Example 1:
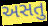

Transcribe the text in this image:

અસતુ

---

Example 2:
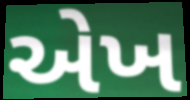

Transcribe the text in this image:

એખ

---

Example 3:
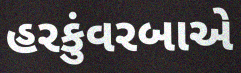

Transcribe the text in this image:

હરકુંવરબાએ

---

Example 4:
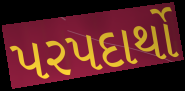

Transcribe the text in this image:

પરપદાર્થો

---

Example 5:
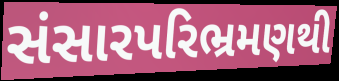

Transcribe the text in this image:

સંસારપરિભ્રમણથી